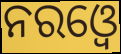
ନରଓ୍ୱେ